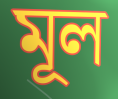
মূল